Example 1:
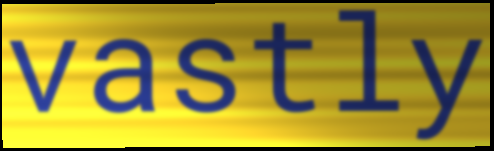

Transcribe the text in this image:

vastly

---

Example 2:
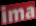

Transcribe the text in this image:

ima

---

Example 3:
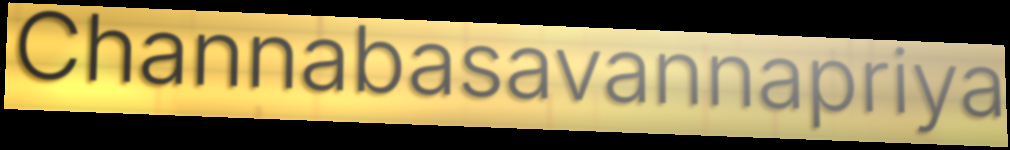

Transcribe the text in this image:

Channabasavannapriya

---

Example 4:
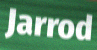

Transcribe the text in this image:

Jarrod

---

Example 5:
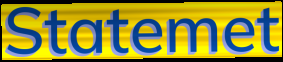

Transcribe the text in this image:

Statemet